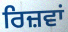
ਰਿਜ਼ਵਾਂ